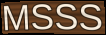
MSSS